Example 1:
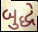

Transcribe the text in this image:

બુદ્ધે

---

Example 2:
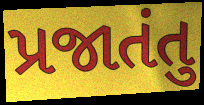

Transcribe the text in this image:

પ્રજાતંતુ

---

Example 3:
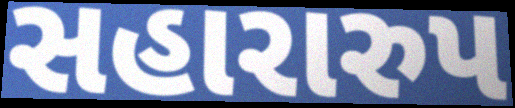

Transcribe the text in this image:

સહારારુપ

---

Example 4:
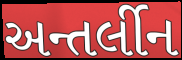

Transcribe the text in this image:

અન્તર્લીન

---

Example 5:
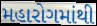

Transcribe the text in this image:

મહારોગમાંથી